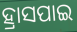
ହ୍ରାସପାଇ